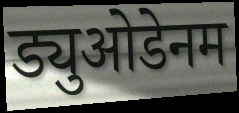
ड्युओडेनम